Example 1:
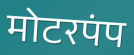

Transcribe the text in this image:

मोटरपंप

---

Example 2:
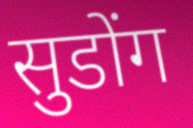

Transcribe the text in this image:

सुडोंग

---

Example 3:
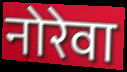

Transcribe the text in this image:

नोरेवा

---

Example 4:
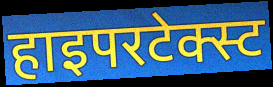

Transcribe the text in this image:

हाइपरटेक्स्ट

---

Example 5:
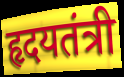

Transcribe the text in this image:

हृदयतंत्री